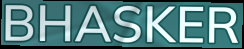
BHASKER